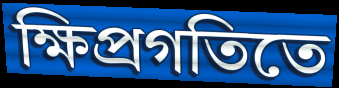
ক্ষিপ্রগতিতে